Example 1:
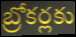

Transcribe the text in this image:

బ్రోకర్లకు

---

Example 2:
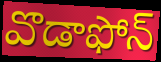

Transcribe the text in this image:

వొడాఫోన్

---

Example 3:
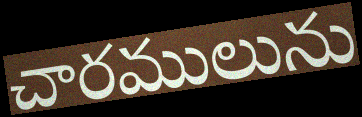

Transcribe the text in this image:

చారములును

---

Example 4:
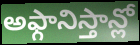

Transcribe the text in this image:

అఫ్గానిస్తాన్లో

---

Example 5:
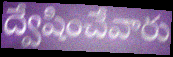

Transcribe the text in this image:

ద్వేషించేవారు